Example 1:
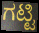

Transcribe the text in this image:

ಗಟ್ಟಿ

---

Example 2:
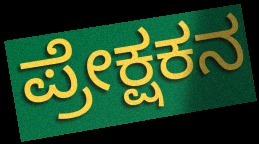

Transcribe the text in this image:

ಪ್ರೇಕ್ಷಕನ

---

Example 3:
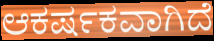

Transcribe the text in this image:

ಆಕರ್ಷಕವಾಗಿದೆ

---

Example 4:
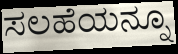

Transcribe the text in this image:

ಸಲಹೆಯನ್ನೂ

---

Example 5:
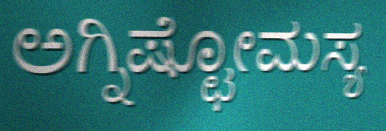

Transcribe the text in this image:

ಅಗ್ನಿಷ್ಟೋಮಸ್ಯ